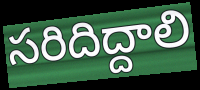
సరిదిద్దాలి